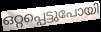
ഒറ്റപ്പെട്ടുപോയി